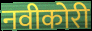
नवीकोरी